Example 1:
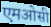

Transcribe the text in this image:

एमओसी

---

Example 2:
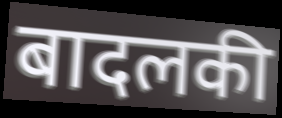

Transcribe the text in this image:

बादलकी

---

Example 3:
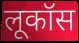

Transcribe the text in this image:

लूकॉस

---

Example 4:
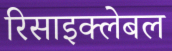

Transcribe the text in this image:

रिसाइक्लेबल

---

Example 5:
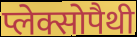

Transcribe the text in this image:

प्लेक्सोपैथी